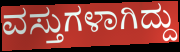
ವಸ್ತುಗಳಾಗಿದ್ದು